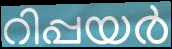
റിപ്പയർ